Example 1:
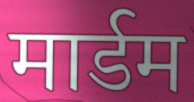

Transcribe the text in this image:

मार्डम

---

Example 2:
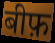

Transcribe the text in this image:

बीफ़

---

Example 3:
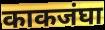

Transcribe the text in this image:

काकजंघा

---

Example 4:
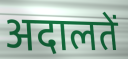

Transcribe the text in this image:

अदालतें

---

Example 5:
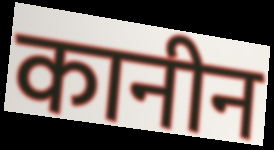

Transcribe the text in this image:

कानीन